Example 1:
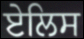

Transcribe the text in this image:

ਏਲਿਸ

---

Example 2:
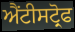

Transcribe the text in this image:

ਐਂਟੀਸਟ੍ਰੋਫ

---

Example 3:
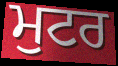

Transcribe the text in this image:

ਮੁਟਰ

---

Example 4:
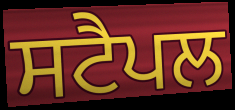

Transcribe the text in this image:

ਸਟੈਪਲ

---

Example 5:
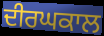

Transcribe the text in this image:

ਦੀਰਘਕਾਲ